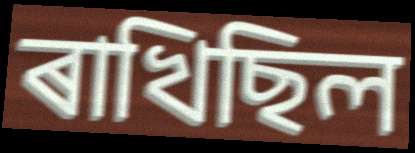
ৰাখিছিল